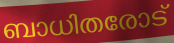
ബാധിതരോട്